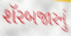
શૅરબજારનું